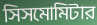
সিসমোমিটার